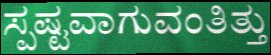
ಸ್ಪಷ್ಟವಾಗುವಂತಿತ್ತು